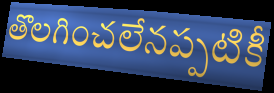
తొలగించలేనప్పటికీ